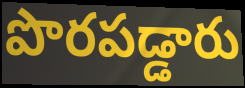
పొరపడ్డారు